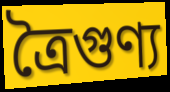
ত্রৈগুণ্য